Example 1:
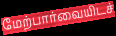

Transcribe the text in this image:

மேற்பார்வையிடச்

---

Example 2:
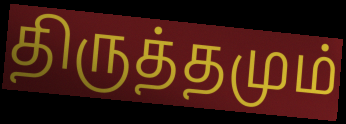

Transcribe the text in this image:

திருத்தமும்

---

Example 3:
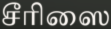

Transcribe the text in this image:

சீரிஸை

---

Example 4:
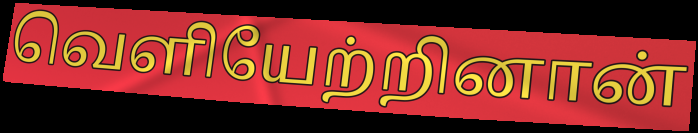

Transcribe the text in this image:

வெளியேற்றினான்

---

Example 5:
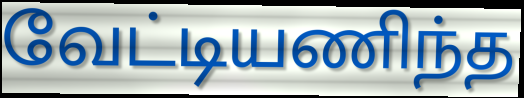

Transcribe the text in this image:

வேட்டியணிந்த